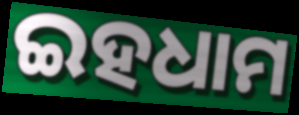
ଇହଧାମ